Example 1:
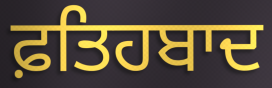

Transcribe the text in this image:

ਫ਼ਤਿਹਬਾਦ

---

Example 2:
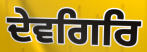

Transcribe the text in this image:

ਦੇਵਗਿਰਿ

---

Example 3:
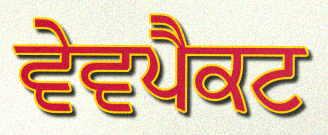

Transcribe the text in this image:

ਵੇਵਪੈਕਟ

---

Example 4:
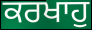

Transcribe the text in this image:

ਕਰਖਾਹੁ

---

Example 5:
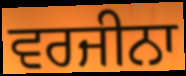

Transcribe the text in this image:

ਵਰਜੀਨਾ